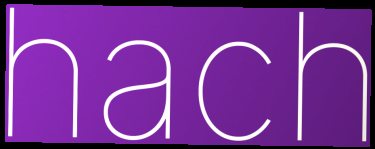
hach